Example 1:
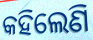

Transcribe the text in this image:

କହିଲେଣି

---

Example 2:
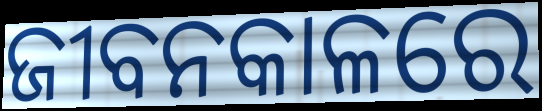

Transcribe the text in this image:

ଜୀବନକାଳରେ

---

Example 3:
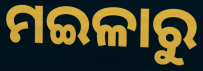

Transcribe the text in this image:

ମଇଳାରୁ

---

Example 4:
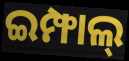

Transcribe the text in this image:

ଇମ୍ଫାଲ୍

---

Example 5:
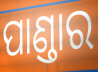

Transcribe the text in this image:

ପାଣ୍ଡାର